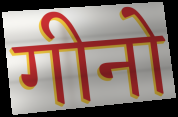
गीनो